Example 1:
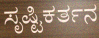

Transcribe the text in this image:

ಸೃಷ್ಟಿಕರ್ತನ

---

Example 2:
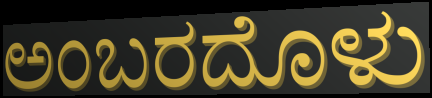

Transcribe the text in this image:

ಅಂಬರದೊಳು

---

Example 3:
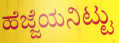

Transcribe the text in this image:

ಹೆಜ್ಜೆಯನಿಟ್ಟು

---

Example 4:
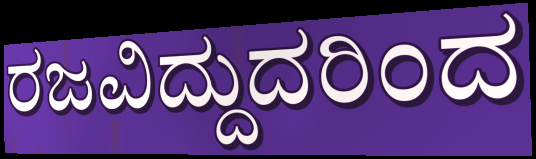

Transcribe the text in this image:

ರಜವಿದ್ದುದರಿಂದ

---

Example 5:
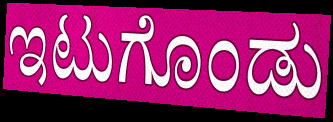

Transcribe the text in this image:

ಇಟುಗೊಂಡು